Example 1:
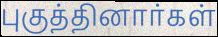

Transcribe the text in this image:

புகுத்தினார்கள்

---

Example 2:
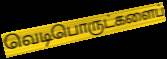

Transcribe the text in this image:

வெடிபொருட்களைப்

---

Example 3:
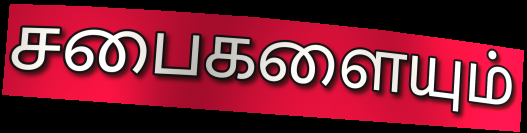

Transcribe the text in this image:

சபைகளையும்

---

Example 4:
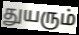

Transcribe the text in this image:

துயரும்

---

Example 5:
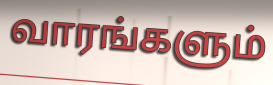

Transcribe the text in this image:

வாரங்களும்